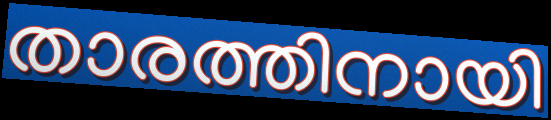
താരത്തിനായി